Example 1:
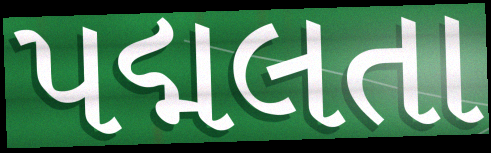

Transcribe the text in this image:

પદ્મલતા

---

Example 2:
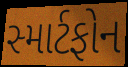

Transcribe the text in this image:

સ્માર્ટફોન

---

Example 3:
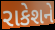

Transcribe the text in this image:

રાકેશને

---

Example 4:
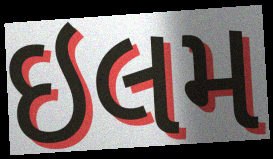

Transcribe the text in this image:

ઇલમ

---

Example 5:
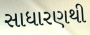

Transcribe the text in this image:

સાધારણથી